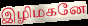
இழிமகனே